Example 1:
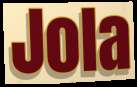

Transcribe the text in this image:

Jola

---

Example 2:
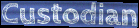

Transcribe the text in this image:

Custodian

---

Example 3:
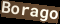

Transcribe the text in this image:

Borago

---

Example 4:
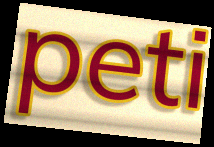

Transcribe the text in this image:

peti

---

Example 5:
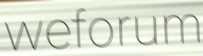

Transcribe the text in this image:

weforum